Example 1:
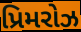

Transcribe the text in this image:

પ્રિમરોઝ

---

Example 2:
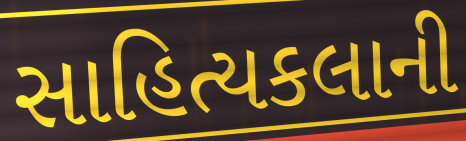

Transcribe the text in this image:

સાહિત્યકલાની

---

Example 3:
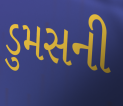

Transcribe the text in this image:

ડુમસની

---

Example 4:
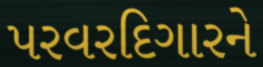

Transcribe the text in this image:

પરવરદિગારને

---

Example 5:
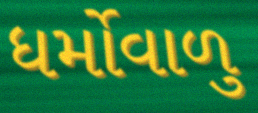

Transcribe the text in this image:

ધર્મોવાળુ